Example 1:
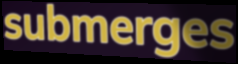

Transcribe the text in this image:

submerges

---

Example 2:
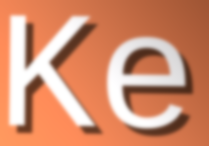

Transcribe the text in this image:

Ke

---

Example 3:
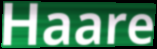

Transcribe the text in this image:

Haare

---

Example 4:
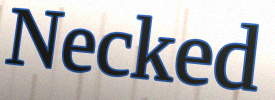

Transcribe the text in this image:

Necked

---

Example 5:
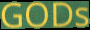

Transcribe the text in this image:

GODs